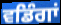
ਵਡਿੰਗਾਂ